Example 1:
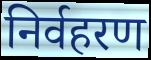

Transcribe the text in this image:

निर्वहरण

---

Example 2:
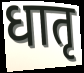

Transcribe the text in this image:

धातृ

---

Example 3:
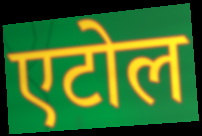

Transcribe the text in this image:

एटोल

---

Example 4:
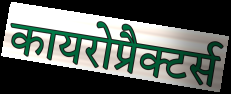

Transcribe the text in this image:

कायरोप्रैक्टर्स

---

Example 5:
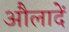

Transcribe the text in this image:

औलादें